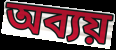
অব্যয়